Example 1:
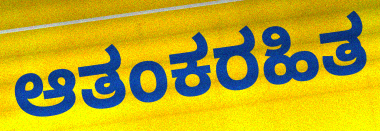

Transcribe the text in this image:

ಆತಂಕರಹಿತ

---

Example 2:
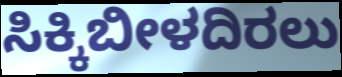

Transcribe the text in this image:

ಸಿಕ್ಕಿಬೀಳದಿರಲು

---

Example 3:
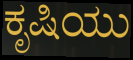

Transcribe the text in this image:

ಕೃಷಿಯು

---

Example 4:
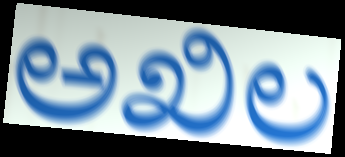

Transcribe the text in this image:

ಅಖಿಲ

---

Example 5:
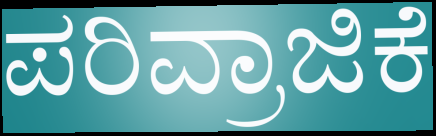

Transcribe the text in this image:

ಪರಿವ್ರಾಜಿಕೆ